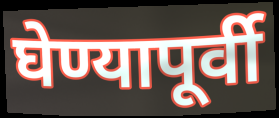
घेण्यापूर्वी